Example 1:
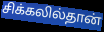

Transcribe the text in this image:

சிக்கலில்தான்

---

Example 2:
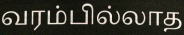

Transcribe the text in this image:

வரம்பில்லாத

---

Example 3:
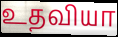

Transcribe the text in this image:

உதவியா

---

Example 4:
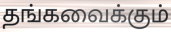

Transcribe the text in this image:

தங்கவைக்கும்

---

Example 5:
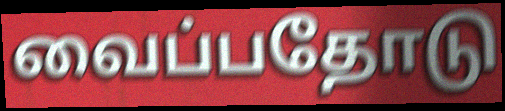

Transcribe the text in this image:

வைப்பதோடு